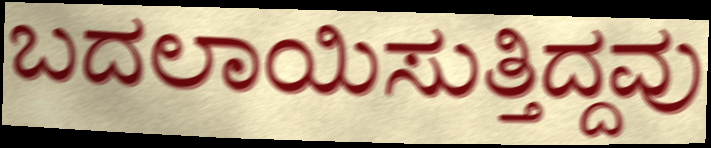
ಬದಲಾಯಿಸುತ್ತಿದ್ದವು